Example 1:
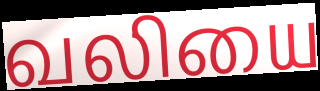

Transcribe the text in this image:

வலியை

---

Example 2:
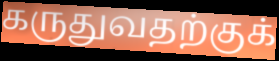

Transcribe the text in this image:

கருதுவதற்குக்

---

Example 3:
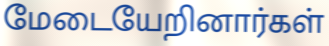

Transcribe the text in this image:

மேடையேறினார்கள்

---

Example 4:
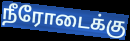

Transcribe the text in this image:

நீரோடைக்கு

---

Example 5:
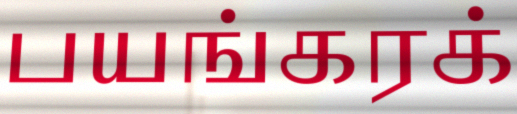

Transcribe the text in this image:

பயங்கரக்